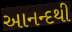
આનન્દથી